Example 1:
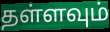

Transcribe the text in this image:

தள்ளவும்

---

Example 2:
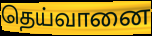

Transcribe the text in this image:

தெய்வானை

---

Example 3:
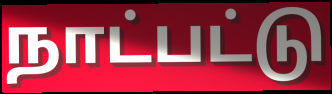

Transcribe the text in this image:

நாட்பட்டு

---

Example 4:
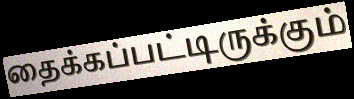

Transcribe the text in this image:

தைக்கப்பட்டிருக்கும்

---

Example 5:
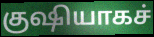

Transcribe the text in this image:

குஷியாகச்